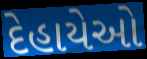
દેહાયેઓ